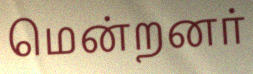
மென்றனர்